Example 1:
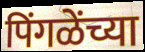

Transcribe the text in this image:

पिंगळेंच्या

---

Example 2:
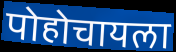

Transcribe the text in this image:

पोहोचायला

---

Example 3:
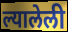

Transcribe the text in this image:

ल्यालेली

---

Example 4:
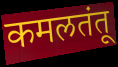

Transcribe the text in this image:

कमलतंतू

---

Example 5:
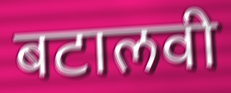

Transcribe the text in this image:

बटालवी